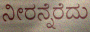
ನೀರನ್ನೆರೆದು